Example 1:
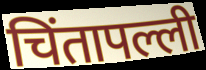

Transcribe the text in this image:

चिंतापल्ली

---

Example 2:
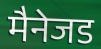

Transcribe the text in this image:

मैनेजड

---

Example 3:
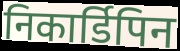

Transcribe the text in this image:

निकार्डिपिन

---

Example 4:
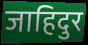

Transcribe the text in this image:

जाहिदुर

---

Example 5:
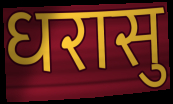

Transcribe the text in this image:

धरासु